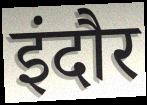
इंदौर